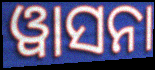
ୱାସନା